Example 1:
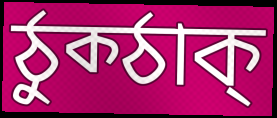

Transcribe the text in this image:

ঠুক্ঠাক্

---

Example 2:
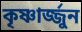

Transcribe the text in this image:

কৃষ্ণার্জ্জুন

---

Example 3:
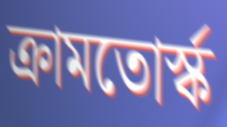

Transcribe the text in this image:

ক্রামতোর্স্ক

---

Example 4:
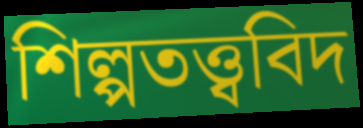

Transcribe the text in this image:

শিল্পতত্ত্ববিদ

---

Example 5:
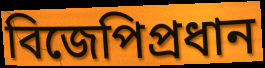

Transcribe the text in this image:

বিজেপিপ্রধান